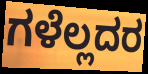
ಗಳೆಲ್ಲದರ